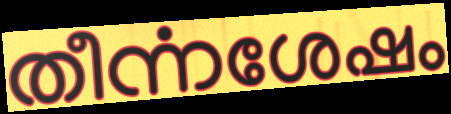
തീൎന്നശേഷം